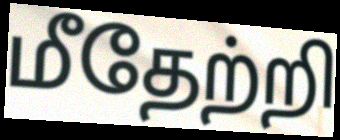
மீதேற்றி